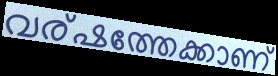
വര്ഷത്തേക്കാണ്